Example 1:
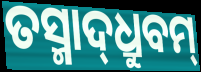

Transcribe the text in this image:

ତସ୍ମାଦ୍‌ଧ୍ରୁବମ୍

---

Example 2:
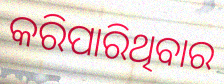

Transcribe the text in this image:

କରିପାରିଥିବାର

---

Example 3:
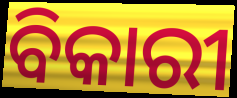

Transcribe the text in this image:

ବିକାରୀ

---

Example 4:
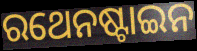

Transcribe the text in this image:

ରଥେନଷ୍ଟାଇନ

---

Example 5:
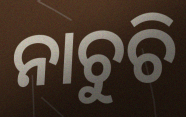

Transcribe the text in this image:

ନାଚୁଚି